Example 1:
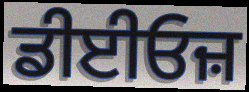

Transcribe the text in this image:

ਡੀਈਓਜ਼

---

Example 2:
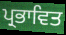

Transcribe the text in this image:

ਪ੍ਰਭਾਵਿਤ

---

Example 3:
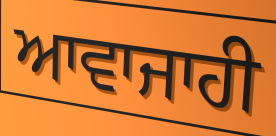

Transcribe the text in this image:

ਆਵਾਜਾਹੀ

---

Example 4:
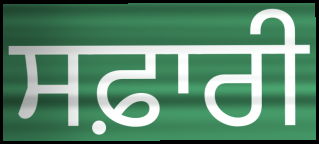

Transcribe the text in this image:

ਸਫ਼ਾਰੀ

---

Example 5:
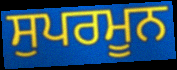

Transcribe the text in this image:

ਸੁਪਰਮੂਨ